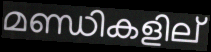
മണ്ഡികളില്